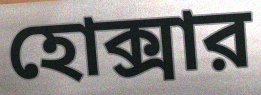
হোক্সার